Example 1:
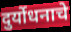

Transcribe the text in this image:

दुर्योधनाचे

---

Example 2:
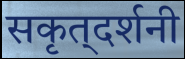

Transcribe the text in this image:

सकृत्‌दर्शनी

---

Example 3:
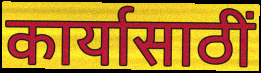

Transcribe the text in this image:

कार्यासाठीं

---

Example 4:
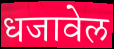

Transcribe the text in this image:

धजावेल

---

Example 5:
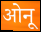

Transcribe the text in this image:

ओनू